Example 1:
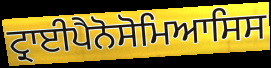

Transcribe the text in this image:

ਟ੍ਰਾਈਪੈਨੋਸੋਮਿਆਸਿਸ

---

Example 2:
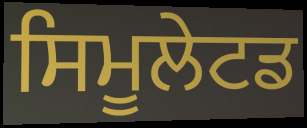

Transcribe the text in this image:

ਸਿਮੂਲੇਟਡ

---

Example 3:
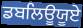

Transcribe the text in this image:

ਡਬਲਿਊਯੂਏ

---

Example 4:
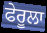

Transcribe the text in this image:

ਫੇਰੂਲਾ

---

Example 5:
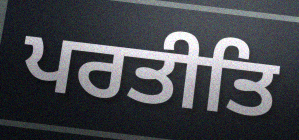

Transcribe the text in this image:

ਪਰਤੀਤਿ